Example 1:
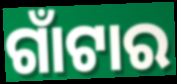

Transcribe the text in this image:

ଗାଁଟାର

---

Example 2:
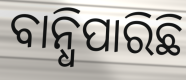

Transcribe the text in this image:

ବାନ୍ଧିପାରିଛି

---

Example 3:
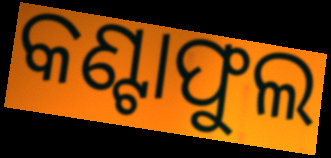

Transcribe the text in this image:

କଣ୍ଟାଫୁଲ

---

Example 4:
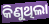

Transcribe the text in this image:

କିଣୁଥିଲା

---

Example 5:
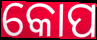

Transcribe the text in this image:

କୋପ